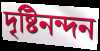
দৃষ্টিনন্দন